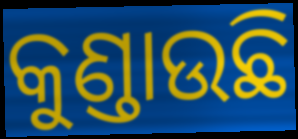
କୁଣ୍ଡାଉଛି